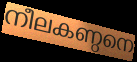
നീലകണ്ഠനെ